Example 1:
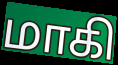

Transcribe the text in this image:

மாகி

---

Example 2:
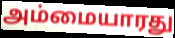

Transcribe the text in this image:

அம்மையாரது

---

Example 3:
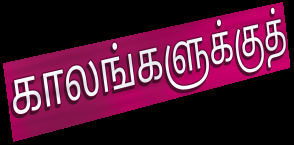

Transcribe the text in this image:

காலங்களுக்குத்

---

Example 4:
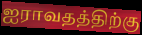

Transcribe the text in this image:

ஐராவதத்திற்கு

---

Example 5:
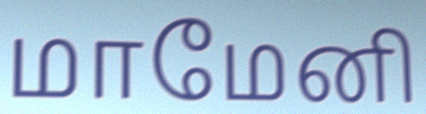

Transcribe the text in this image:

மாமேனி